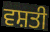
ਵਸ਼ਤੀ